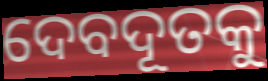
ଦେବଦୂତକୁ